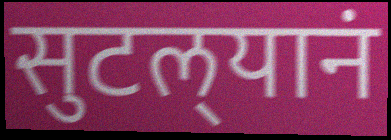
सुटल्यानं